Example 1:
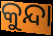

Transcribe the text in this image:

କୁନ୍ଦା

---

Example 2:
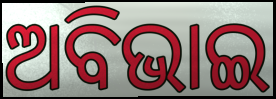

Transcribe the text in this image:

ଅବିଭାଇ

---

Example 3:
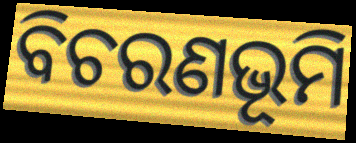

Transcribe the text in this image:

ବିଚରଣଭୂମି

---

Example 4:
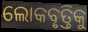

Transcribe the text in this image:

ଲୋକବୃତ୍ତିକୁ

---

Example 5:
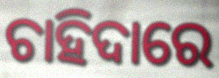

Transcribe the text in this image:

ଚାହିଦାରେ